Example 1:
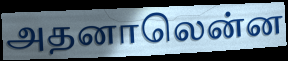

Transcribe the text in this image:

அதனாலென்ன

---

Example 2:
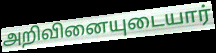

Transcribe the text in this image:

அறிவினையுடையார்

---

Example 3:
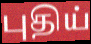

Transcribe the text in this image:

புதிய்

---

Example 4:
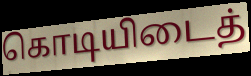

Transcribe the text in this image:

கொடியிடைத்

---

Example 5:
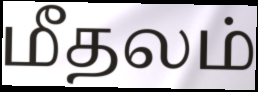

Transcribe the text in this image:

மீதலம்